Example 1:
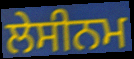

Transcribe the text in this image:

ਲੇਸੀਨਮ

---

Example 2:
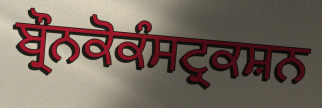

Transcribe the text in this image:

ਬ੍ਰੌਨਕੋਕੰਸਟ੍ਰਕਸ਼ਨ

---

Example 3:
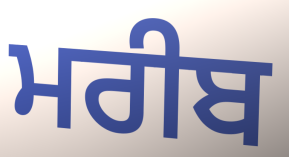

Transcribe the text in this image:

ਮਰੀਬ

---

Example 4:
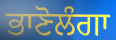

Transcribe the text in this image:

ਭਾਣੋਲੰਗਾ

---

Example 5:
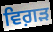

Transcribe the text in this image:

ਵਿਗ਼ੜ